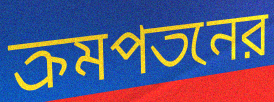
ক্রমপতনের